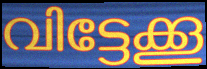
വിട്ടേക്കൂ